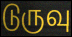
டுருவு